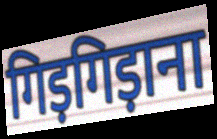
गिड़गिड़ाना